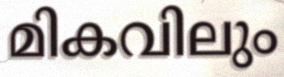
മികവിലും